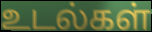
உடல்கள்